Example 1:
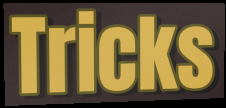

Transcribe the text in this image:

Tricks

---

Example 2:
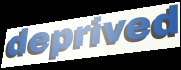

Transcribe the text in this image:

deprived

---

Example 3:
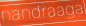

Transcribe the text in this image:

nandraaga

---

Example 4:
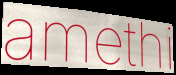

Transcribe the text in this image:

amethi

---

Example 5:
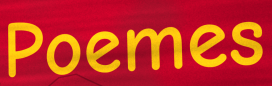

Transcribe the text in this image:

Poemes